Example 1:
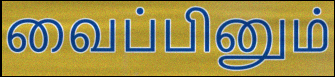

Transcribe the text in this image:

வைப்பினும்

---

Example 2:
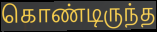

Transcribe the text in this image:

கொண்டிருந்த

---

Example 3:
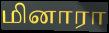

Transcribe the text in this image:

மினாரா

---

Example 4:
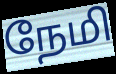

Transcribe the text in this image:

நேமி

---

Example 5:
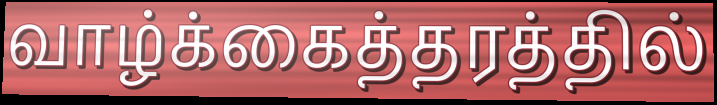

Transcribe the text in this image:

வாழ்க்கைத்தரத்தில்